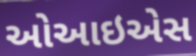
ઓઆઇએસ